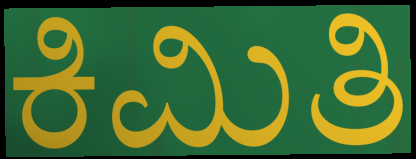
ಕಿಮಿತಿ